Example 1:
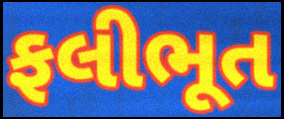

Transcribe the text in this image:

ફલીભૂત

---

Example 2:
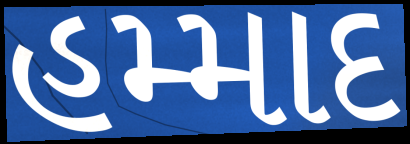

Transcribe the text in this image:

હમ્માદ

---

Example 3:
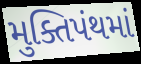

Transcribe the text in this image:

મુક્તિપંથમાં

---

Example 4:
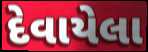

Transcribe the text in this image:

દેવાયેલા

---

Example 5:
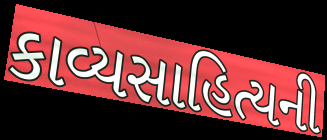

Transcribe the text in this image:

કાવ્યસાહિત્યની